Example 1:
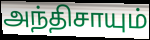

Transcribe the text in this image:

அந்திசாயும்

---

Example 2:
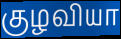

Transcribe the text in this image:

குழவியா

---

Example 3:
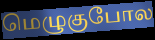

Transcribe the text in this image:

மெழுகுபோல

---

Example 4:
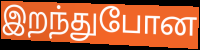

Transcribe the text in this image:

இறந்துபோன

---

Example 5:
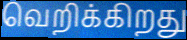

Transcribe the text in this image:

வெறிக்கிறது